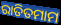
ରାତିତମାମ